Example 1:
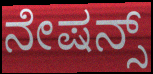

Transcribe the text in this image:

ನೇಷನ್ಸ್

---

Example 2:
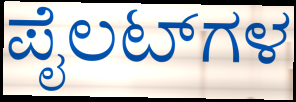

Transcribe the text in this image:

ಪೈಲಟ್‌ಗಳ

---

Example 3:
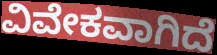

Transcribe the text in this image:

ವಿವೇಕವಾಗಿದೆ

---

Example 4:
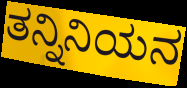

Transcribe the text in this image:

ತನ್ನಿನಿಯನ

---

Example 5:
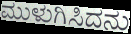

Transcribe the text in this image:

ಮುಳುಗಿಸಿದನು